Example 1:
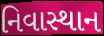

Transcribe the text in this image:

નિવાસ્થાન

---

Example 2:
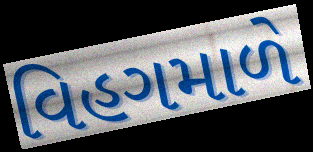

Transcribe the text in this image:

વિહગમાળે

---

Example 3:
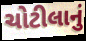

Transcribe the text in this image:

ચોટીલાનું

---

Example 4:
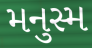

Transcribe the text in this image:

મનુસ્મ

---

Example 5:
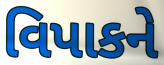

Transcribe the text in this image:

વિપાકને